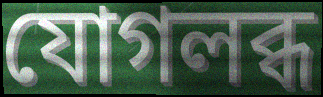
যোগলব্ধ